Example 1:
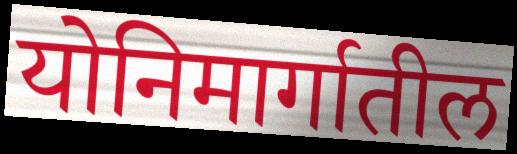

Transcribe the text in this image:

योनिमार्गातील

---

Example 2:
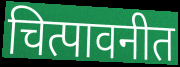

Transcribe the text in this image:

चित्पावनीत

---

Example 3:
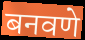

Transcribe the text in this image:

बनवणे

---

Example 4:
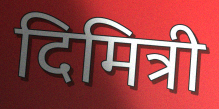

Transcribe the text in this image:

दिमित्री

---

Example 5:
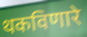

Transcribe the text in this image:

थकविणारे